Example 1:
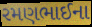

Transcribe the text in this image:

રમણભાઈના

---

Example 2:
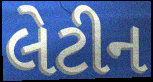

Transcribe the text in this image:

લેટીન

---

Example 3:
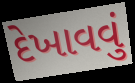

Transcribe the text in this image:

દેખાવવું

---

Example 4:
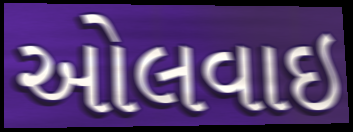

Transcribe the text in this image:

ઓલવાઇ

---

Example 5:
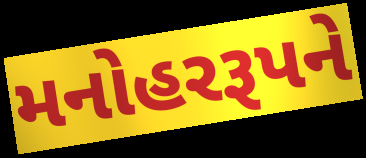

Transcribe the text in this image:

મનોહરરૂપને